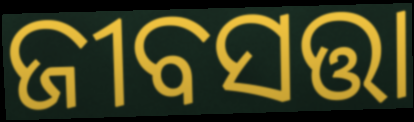
ଜୀବସତ୍ତା